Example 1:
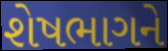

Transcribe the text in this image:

શેષભાગને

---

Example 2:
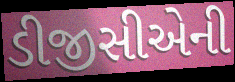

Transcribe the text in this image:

ડીજીસીએની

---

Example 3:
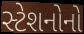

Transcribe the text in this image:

સ્ટેશનોનો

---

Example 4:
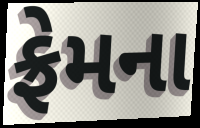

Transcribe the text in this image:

ફ્રેમના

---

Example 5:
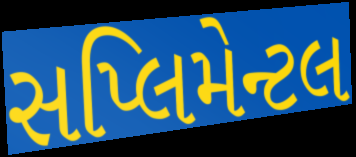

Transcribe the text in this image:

સપ્લિમેન્ટલ